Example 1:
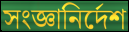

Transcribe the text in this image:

সংজ্ঞানির্দেশ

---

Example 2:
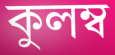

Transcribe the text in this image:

কুলম্ব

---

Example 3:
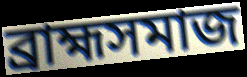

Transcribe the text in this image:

ব্রাহ্মসমাজ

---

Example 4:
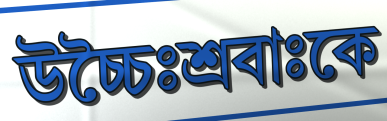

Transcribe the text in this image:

উচ্চৈঃশ্রবাঃকে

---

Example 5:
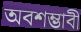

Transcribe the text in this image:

অবশম্ভাবী